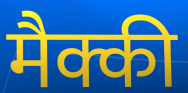
मैक्की